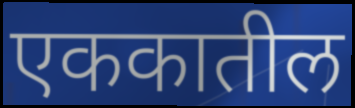
एककातील